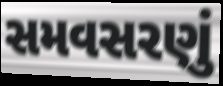
સમવસરણું